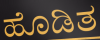
ಹೊಡಿತ